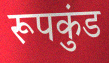
रूपकुंड